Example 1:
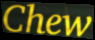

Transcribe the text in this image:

Chew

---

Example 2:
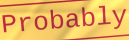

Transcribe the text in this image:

Probably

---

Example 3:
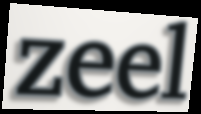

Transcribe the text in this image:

zeel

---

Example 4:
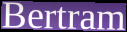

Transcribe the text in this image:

Bertram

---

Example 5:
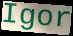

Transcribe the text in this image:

Igor